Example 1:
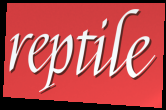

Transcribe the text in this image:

reptile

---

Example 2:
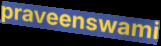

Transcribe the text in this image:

praveenswami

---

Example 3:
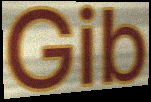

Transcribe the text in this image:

Gib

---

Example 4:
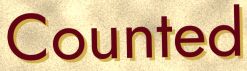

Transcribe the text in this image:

Counted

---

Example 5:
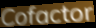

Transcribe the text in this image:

Cofactor